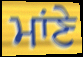
ਮਾਂਣੇ